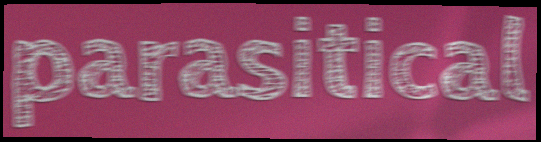
parasitical